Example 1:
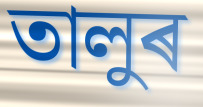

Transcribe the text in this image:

তালুৰ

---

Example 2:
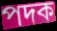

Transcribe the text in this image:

পদক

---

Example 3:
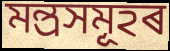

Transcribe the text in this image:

মন্ত্ৰসমূহৰ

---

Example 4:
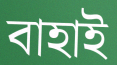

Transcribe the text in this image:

বাহাই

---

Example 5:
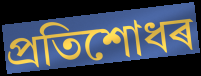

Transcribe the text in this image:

প্ৰতিশোধৰ